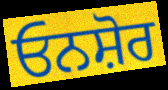
ਓਨਸ਼ੋਰ